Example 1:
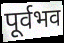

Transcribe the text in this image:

पूर्वभव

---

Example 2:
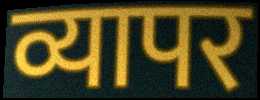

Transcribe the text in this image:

व्यापर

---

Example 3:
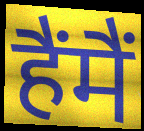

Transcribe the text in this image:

हैंमैं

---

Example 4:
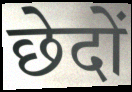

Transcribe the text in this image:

छेदों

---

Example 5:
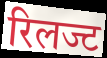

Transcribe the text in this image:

रिलज्ट